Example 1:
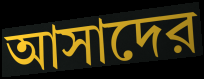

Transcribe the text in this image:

আসাদের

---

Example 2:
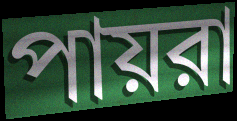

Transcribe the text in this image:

পায়রা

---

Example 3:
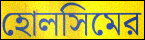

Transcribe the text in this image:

হোলসিমের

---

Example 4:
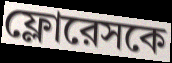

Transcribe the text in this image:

ফ্লোরেসকে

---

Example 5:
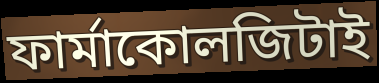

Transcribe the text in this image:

ফার্মাকোলজিটাই